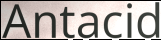
Antacid